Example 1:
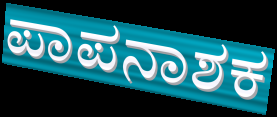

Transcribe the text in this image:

ಪಾಪನಾಶಕ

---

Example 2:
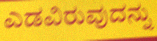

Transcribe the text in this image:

ಎಡವಿರುವುದನ್ನು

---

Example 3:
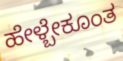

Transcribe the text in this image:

ಹೇಳ್ಬೇಕೂಂತ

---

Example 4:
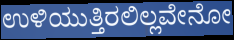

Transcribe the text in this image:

ಉಳಿಯುತ್ತಿರಲಿಲ್ಲವೇನೋ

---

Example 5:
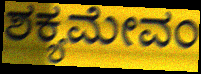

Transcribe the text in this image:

ಶಕ್ಯಮೇವಂ